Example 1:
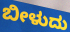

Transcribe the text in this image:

ಬೀಳುದು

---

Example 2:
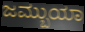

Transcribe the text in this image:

ಜಮ್ಬುಯಾ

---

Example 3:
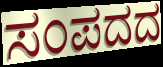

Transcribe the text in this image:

ಸಂಪದದ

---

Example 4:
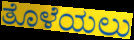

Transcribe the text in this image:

ತೊಳೆಯಲು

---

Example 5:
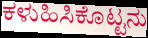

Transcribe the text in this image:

ಕಳುಹಿಸಿಕೊಟ್ಟನು